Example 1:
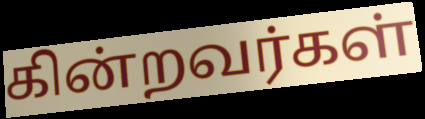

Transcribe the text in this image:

கின்றவர்கள்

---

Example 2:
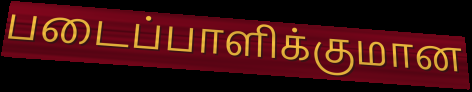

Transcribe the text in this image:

படைப்பாளிக்குமான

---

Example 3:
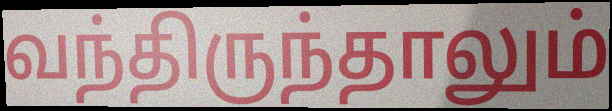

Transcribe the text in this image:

வந்திருந்தாலும்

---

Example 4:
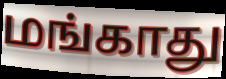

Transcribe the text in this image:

மங்காது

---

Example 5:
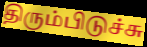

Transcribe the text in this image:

திரும்பிடுச்சு